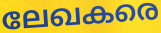
ലേഖകരെ